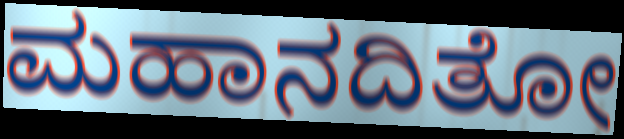
ಮಹಾನದಿತೋ